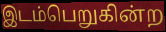
இடம்பெறுகின்ற